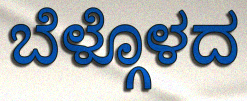
ಬೆಳ್ಗೊಳದ